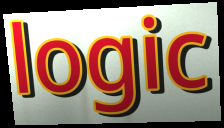
logic